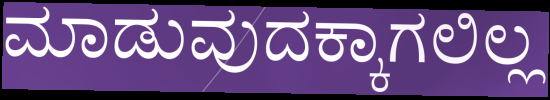
ಮಾಡುವುದಕ್ಕಾಗಲಿಲ್ಲ